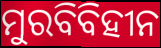
ମୁରବିବିହୀନ